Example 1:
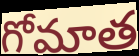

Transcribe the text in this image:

గోమాత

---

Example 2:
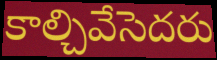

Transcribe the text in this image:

కాల్చివేసెదరు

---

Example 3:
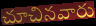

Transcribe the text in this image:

చూచినవారు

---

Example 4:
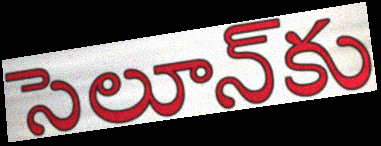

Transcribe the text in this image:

సెలూన్‌కు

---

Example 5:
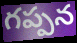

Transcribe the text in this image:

గప్పన